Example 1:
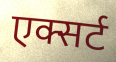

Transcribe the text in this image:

एक्सर्ट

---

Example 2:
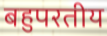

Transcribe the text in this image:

बहुपरतीय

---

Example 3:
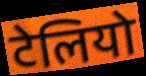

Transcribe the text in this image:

टेलियो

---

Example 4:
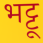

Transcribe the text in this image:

भट्टू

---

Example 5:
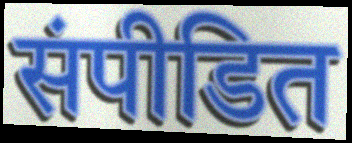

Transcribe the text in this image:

संपीडित